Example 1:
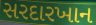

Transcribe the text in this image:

સરદારખાન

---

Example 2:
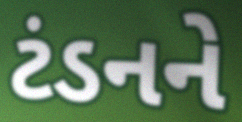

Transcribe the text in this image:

ટંડનને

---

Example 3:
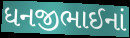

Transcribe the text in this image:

ધનજીભાઈનાં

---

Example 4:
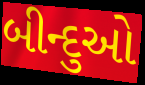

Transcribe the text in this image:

બીન્દુઓ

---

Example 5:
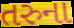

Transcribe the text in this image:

તરુના